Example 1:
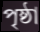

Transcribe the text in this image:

পৃষ্ঠা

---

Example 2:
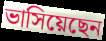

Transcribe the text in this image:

ভাসিয়েছেন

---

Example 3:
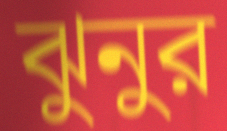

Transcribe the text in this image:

ঝুনুর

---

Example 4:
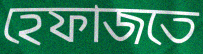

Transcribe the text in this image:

হেফাজতে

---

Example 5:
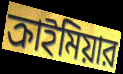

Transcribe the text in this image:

ক্রাইমিয়ার